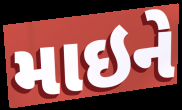
માઇને